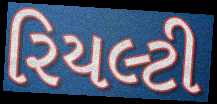
રિયલ્ટી